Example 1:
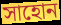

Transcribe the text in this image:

সাহোন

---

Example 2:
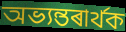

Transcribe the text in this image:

অভ্যন্তৰাৰ্থক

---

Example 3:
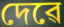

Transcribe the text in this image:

দেৱে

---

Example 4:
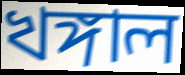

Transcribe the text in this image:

খঙ্গাল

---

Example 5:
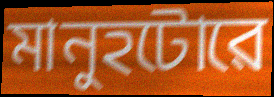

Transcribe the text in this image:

মানুহটোৱে